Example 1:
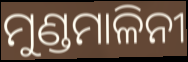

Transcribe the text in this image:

ମୁଣ୍ଡମାଳିନୀ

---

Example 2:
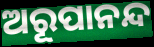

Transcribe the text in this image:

ଅରୂପାନନ୍ଦ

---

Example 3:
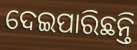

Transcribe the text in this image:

ଦେଇପାରିଛନ୍ତି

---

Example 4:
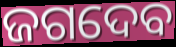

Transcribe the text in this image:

ଜଗଦେବ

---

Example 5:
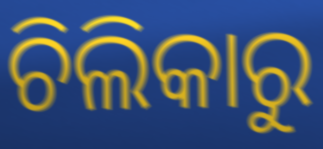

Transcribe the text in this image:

ଚିଲିକାରୁ